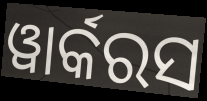
ୱାର୍କରସ